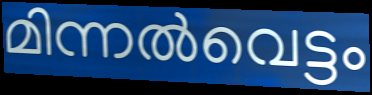
മിന്നൽവെട്ടം